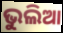
ଭୁଲିଆ